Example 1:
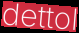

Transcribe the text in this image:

dettol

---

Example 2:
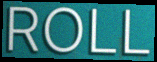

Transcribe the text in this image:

ROLL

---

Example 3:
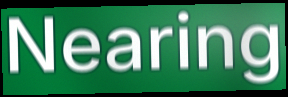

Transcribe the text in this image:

Nearing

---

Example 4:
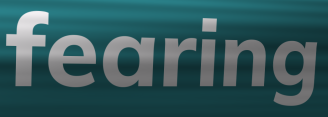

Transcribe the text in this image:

fearing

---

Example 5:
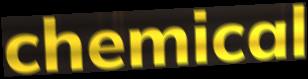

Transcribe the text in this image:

chemical